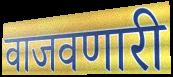
वाजवणारी